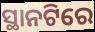
ସ୍ଥାନଟିରେ